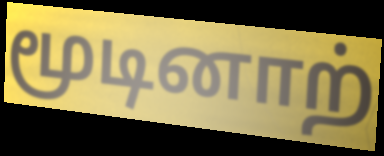
மூடினாற்